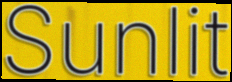
Sunlit